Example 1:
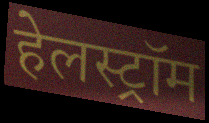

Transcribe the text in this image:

हेलस्ट्रॉम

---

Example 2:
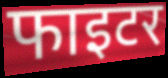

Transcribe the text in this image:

फाइटर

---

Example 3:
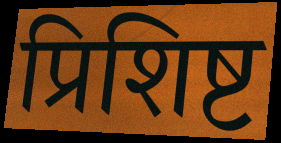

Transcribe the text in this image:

प्रिशिष्ट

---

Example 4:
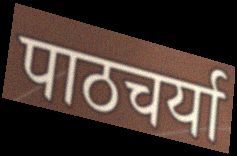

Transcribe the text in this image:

पाठचर्या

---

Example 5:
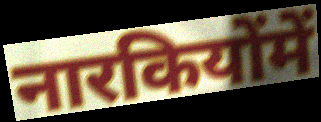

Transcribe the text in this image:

नारकियोंमें